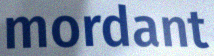
mordant